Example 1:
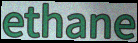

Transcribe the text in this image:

ethane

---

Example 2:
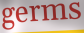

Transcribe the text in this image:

germs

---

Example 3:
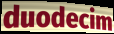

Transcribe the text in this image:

duodecim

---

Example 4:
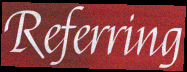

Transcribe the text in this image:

Referring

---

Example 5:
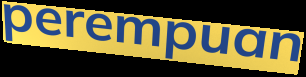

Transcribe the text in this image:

perempuan